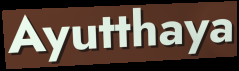
Ayutthaya